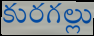
కురగల్లు